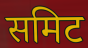
समिट